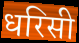
धरिसी